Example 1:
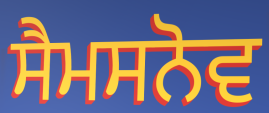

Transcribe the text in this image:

ਸੈਮਸਨੋਵ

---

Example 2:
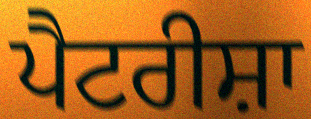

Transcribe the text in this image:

ਪੈਟਰੀਸ਼ਾ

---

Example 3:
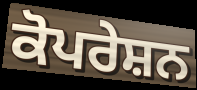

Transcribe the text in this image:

ਕੋਪਰੇਸ਼ਨ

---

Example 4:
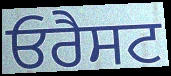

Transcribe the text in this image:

ਓਰੈਸਟ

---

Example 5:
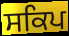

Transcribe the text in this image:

ਸਕਿਪ